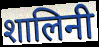
शालिनी